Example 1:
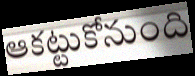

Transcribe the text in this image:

ఆకట్టుకోనుంది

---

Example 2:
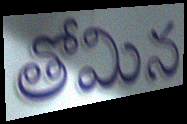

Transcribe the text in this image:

తోమిన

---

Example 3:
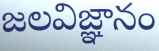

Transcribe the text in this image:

జలవిజ్ఞానం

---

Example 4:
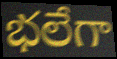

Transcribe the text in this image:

భలేగా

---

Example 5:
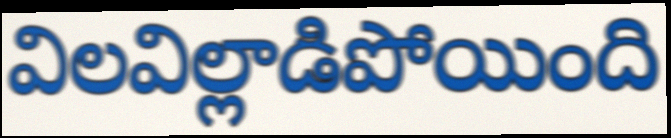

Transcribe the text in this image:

విలవిల్లాడిపోయింది